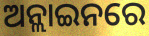
ଅନ୍ଲାଇନରେ